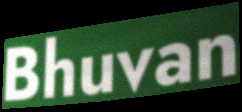
Bhuvan